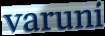
varuni